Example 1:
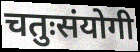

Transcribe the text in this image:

चतुःसंयोगी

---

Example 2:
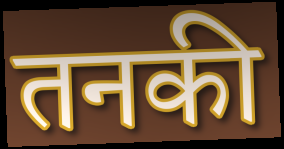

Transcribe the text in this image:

तनकी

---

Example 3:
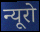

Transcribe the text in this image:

न्यूरो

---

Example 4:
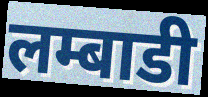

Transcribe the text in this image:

लम्बाडी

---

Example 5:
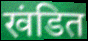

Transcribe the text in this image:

खंडित